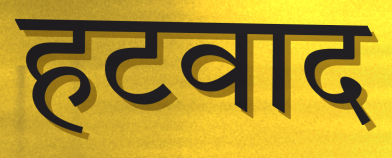
हटवाद